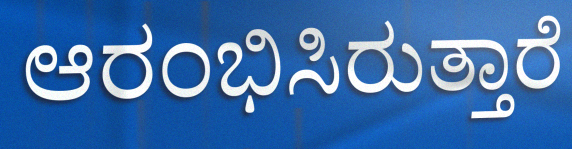
ಆರಂಭಿಸಿರುತ್ತಾರೆ